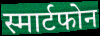
स्मार्टफोन